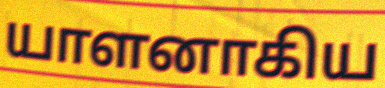
யாளனாகிய